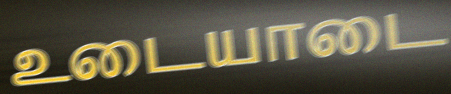
உடையாடை